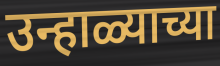
उन्हाळ्याच्या